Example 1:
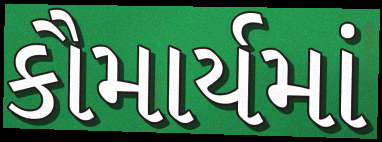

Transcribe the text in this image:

કૌમાર્યમાં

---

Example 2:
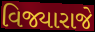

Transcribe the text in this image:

વિજ્યારાજે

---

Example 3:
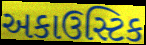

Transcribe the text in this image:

અકાઉસ્ટિક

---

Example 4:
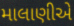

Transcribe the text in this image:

માલાણીએ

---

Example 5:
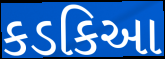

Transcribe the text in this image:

કડકિઆ